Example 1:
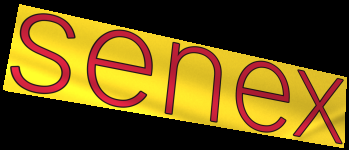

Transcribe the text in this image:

senex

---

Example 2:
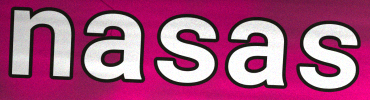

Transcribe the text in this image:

nasas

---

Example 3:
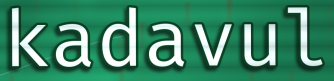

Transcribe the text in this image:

kadavul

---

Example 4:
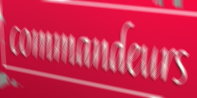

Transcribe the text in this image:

commandeurs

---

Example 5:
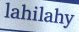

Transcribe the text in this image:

lahilahy